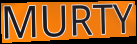
MURTY